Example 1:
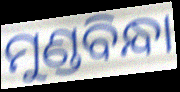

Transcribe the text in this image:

ମୁଣ୍ଡବିନ୍ଧା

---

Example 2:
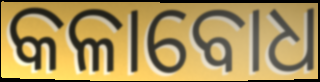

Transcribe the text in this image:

କଳାବୋଧ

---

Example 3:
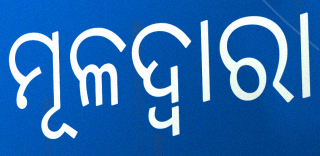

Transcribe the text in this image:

ମୂଳଦ୍ଵାରା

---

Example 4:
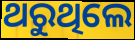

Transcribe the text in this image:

ଥରୁଥିଲେ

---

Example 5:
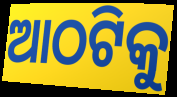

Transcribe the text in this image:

ଆଠଟିକୁ